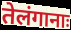
तेलंगानाः